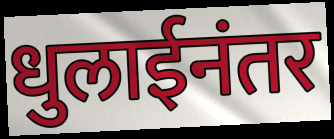
धुलाईनंतर